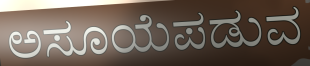
ಅಸೂಯೆಪಡುವ